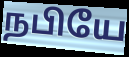
நபியே